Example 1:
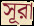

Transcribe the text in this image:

সূরা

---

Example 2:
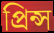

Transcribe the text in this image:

প্রিন্স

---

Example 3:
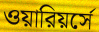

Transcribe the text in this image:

ওয়ারিয়র্সে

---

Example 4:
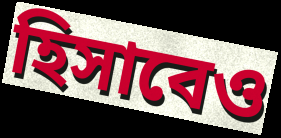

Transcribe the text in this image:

হিসাবেও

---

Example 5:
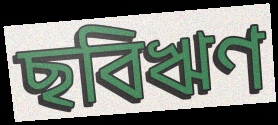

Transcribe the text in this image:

ছবিঋণ